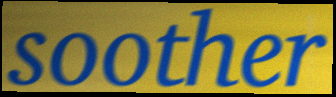
soother